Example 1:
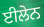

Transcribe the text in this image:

ਈਲੇਨ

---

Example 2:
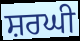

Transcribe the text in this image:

ਸ਼ਰਘੀ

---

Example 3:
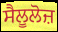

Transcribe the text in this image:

ਸੈਲੂਲੋਜ਼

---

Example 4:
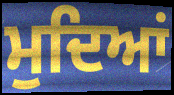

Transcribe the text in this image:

ਮੁਦਿਆਂ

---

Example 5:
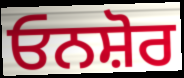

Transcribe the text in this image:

ਓਨਸ਼ੋਰ